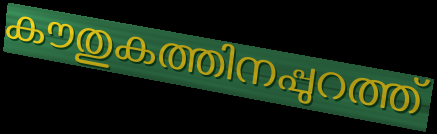
കൗതുകത്തിനപ്പുറത്ത്